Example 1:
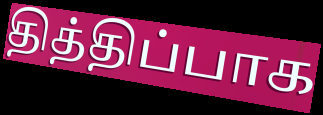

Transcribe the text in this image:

தித்திப்பாக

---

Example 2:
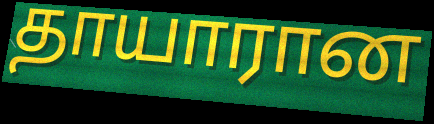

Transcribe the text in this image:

தாயாரான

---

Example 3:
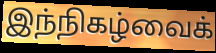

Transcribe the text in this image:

இந்நிகழ்வைக்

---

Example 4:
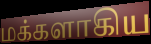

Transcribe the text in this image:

மக்களாகிய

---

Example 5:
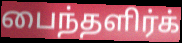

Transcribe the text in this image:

பைந்தளிர்க்